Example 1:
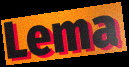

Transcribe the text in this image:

Lema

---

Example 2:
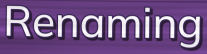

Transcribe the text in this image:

Renaming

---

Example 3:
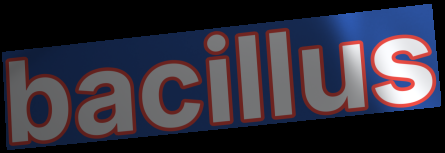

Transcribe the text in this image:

bacillus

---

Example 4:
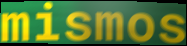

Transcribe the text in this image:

mismos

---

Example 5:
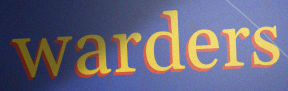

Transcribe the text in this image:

warders